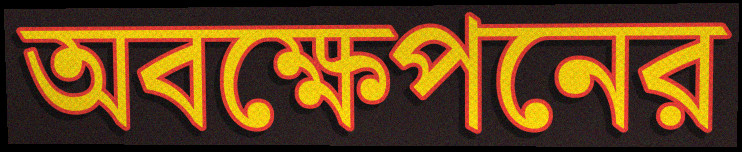
অবক্ষেপনের